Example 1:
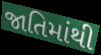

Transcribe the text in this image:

જાતિમાંથી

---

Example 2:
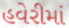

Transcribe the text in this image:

હવેરીમાં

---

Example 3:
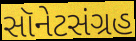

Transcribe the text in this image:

સૉનેટસંગ્રહ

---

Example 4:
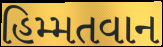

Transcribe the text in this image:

હિમ્મતવાન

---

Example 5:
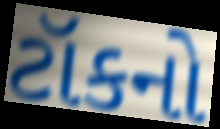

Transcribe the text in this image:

ટૉકનો